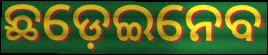
ଛଡ଼େଇନେବ